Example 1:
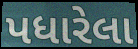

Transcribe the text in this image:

પધારેલા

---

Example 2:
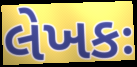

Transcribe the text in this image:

લેખકઃ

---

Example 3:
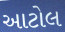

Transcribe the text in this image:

આટોલ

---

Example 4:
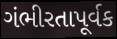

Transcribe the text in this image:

ગંભીરતાપૂર્વક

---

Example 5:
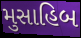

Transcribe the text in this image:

મુસાહિબ